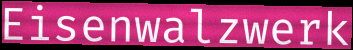
Eisenwalzwerk